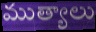
ముత్యాలు